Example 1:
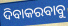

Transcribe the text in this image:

ଦିବାକରବାବୁ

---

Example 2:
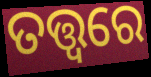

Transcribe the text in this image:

ତତ୍ତ୍ୱରେ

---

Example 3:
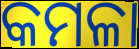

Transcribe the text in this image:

କମଳା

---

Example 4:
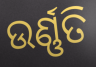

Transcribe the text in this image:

ଉର୍ଣ୍ଣତି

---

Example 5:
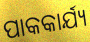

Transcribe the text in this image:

ପାକକାର୍ଯ୍ୟ